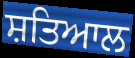
ਸ਼ਤਿਆਲ